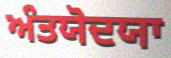
ਅੰਤਯੋਦਯਾ